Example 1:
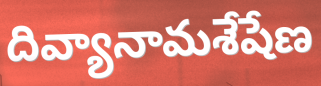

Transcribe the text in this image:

దివ్యానామశేషేణ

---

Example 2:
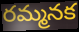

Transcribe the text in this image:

రమ్మనక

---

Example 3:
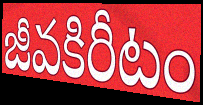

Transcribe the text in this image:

జీవకిరీటం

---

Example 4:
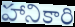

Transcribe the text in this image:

హానికారి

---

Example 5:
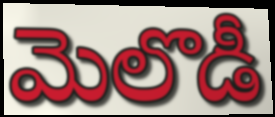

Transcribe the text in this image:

మెలొడీ